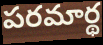
పరమార్థ